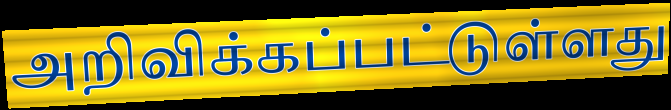
அறிவிக்கப்பட்டுள்ளது